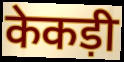
केकड़ी